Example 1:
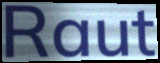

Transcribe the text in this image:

Raut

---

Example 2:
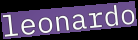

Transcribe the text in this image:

leonardo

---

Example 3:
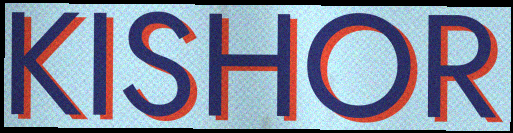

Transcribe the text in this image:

KISHOR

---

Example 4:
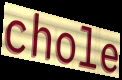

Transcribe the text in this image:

chole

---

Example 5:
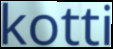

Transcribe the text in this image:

kotti